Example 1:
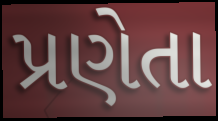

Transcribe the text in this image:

પ્રણેતા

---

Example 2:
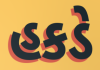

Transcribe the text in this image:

હકડે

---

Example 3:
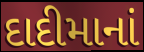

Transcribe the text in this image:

દાદીમાનાં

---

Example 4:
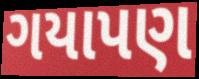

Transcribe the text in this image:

ગયાપણ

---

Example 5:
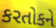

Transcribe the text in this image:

કરતોકને